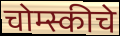
चोम्स्कीचे